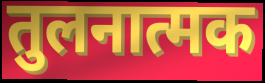
तुलनात्मक